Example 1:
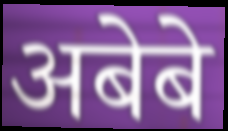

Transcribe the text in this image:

अबेबे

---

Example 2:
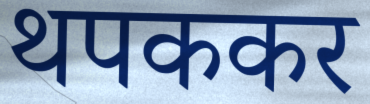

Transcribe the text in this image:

थपककर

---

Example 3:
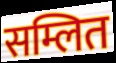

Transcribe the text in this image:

सम्लित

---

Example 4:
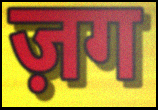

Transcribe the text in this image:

ज़ग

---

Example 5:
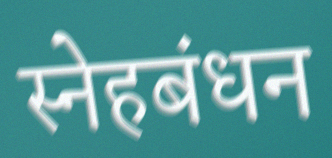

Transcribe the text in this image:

स्नेहबंधन